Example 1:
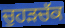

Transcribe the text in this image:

ਚੁਹੜਚੱਕ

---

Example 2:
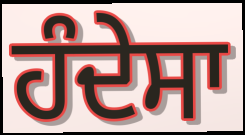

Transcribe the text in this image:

ਹੰਦੇਸਾ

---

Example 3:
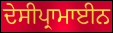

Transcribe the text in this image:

ਦੇਸੀਪ੍ਰਾਮਾਈਨ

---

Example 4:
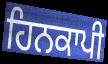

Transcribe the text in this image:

ਹਿਨਕਾਪੀ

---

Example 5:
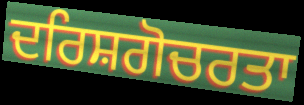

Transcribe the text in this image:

ਦਰਿਸ਼ਗੋਚਰਤਾ